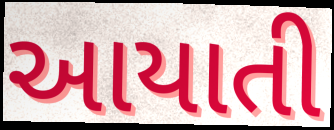
આયાતી